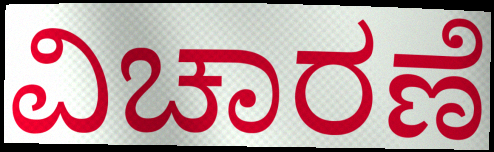
ವಿಚಾರಣೆ